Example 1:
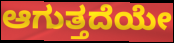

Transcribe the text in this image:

ಆಗುತ್ತದೆಯೇ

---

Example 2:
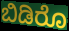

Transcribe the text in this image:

ಬಿಡಿರೊ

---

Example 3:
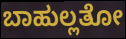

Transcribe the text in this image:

ಬಾಹುಲ್ಲತೋ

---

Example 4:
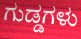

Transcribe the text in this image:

ಗುಡ್ಡಗಳು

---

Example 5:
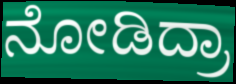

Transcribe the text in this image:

ನೋಡಿದ್ರಾ